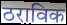
ठराविक